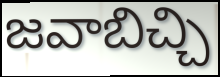
జవాబిచ్చి